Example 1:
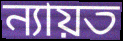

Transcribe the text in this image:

ন্যায়ত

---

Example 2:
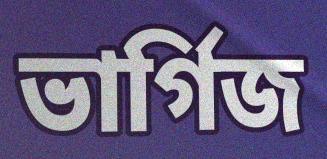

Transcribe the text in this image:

ভাৰ্গিজ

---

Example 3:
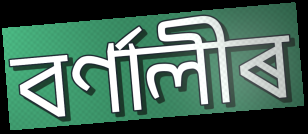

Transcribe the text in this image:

বৰ্ণালীৰ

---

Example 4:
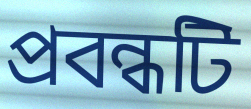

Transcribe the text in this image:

প্ৰবন্ধটি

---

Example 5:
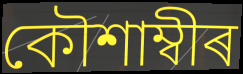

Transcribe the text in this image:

কৌশাম্বীৰ